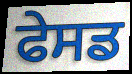
ਫੇਸਡ